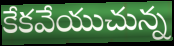
కేకవేయుచున్న